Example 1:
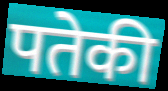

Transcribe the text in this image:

पतेकी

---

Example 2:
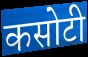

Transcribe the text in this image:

कसोटी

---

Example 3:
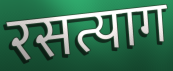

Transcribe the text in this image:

रसत्याग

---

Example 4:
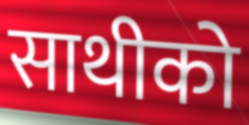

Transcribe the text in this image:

साथीको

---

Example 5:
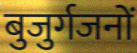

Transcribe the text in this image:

बुजुर्गजनों